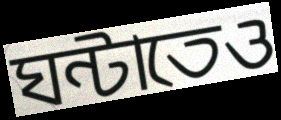
ঘন্টাতেও